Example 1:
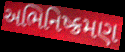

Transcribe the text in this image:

અભિનિષ્ક્રમણ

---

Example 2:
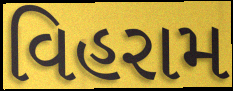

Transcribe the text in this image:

વિહરામ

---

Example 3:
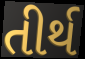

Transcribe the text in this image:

તીર્થ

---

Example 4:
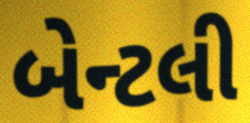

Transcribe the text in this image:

બેન્ટલી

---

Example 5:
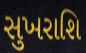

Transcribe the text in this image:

સુખરાશિ